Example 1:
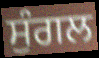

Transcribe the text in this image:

ਸੁੰਗਲ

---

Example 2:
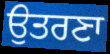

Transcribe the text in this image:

ਉਤਰਣਾ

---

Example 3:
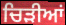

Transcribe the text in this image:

ਚਿੜੀਆਂ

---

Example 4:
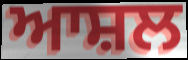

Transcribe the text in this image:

ਆਸ਼ਲ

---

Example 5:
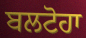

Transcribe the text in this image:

ਬਲਟੋਹਾ